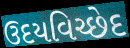
ઉદયવિચ્છેદ